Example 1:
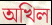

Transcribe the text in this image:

অখিল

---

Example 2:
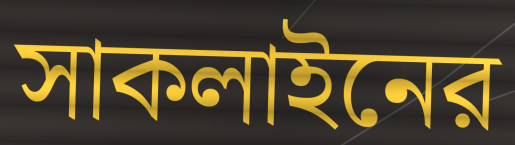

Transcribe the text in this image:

সাকলাইনের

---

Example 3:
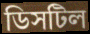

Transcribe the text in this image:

ডিসটিল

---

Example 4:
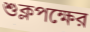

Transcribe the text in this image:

শুক্লপক্ষের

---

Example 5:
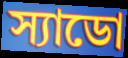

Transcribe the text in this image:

স্যাডো